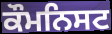
ਕੌਮਨਿਸਟ